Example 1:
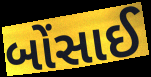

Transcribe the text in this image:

બોંસાઈ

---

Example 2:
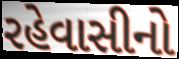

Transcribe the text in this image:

રહેવાસીનો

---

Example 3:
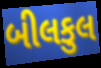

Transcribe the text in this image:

બીલકુલ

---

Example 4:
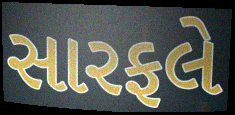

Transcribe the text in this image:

સારફલે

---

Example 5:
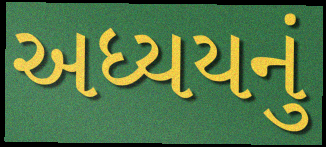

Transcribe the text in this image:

અધ્યયનું